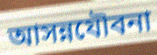
আসন্নযৌবনা